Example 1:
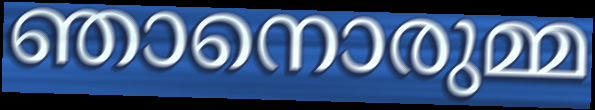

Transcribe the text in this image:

ഞാനൊരുമ്മ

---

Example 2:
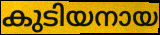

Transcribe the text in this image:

കുടിയനായ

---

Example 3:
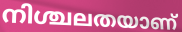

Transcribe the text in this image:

നിശ്ചലതയാണ്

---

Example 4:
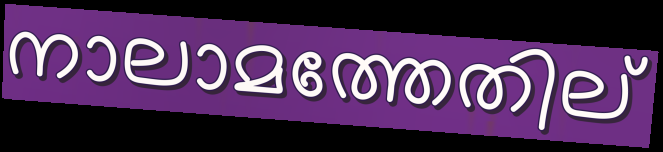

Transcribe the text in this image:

നാലാമത്തേതില്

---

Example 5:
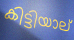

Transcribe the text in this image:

കിട്ടിയാല്